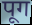
पूग